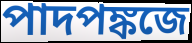
পাদপঙ্কজে